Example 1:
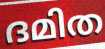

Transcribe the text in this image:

ദമിത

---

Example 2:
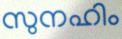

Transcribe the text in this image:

സുനഹിം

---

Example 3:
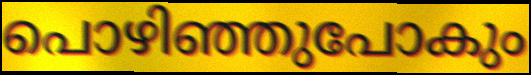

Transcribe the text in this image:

പൊഴിഞ്ഞുപോകും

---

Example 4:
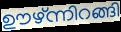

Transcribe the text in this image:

ഊഴ്ന്നിറങ്ങി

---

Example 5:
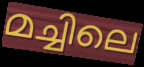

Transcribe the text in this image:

മച്ചിലെ